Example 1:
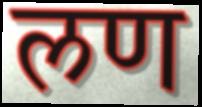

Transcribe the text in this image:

लण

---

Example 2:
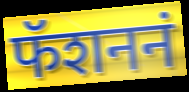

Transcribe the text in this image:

फॅशननं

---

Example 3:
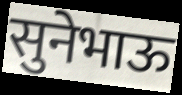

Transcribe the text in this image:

सुनेभाऊ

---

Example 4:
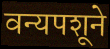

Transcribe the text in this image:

वन्यपशूने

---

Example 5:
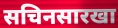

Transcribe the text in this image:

सचिनसारखा